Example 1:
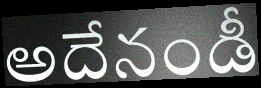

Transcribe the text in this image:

అదేనండీ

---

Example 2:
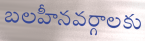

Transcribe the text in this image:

బలహీనవర్గాలకు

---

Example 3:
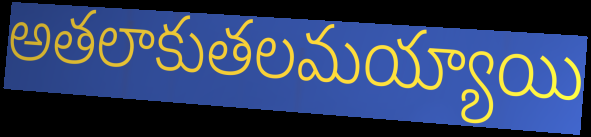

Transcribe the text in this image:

అతలాకుతలమయ్యాయి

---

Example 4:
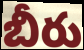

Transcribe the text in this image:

బీరు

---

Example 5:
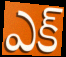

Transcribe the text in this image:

ఎక్